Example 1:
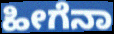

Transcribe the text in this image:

ಹೀಗೆನಾ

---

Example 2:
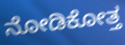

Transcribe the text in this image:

ನೋಡಿಕೋತ್ತ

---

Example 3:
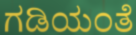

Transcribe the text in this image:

ಗಡಿಯಂತೆ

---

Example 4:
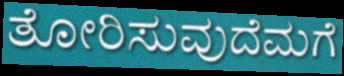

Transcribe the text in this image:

ತೋರಿಸುವುದೆಮಗೆ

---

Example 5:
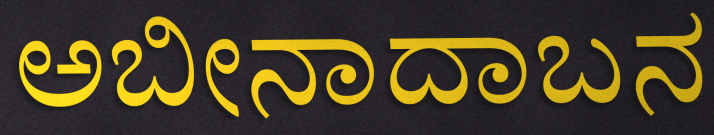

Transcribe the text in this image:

ಅಬೀನಾದಾಬನ